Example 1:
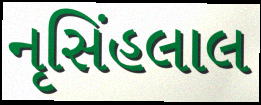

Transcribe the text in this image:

નૃસિંહલાલ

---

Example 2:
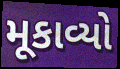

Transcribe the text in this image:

મૂકાવ્યો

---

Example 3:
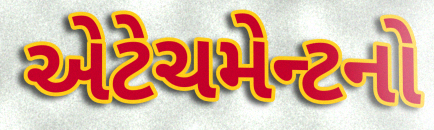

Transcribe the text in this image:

એટેચમેન્ટનો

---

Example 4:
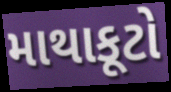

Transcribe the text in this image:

માથાકૂટો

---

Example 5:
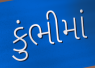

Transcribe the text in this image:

કુંભીમાં